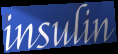
insulin